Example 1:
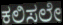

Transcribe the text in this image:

ಕಲಿಸಲೇ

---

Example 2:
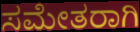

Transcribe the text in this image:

ಸಮೇತರಾಗಿ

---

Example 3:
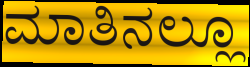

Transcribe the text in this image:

ಮಾತಿನಲ್ಲೂ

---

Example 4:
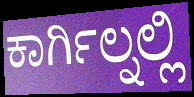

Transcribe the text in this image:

ಕಾರ್ಗಿಲ್ನಲ್ಲಿ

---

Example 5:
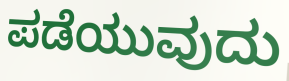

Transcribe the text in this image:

ಪಡೆಯುವುದು